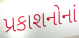
પ્રકાશનોનાં